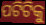
ପଟିଟିକୁ